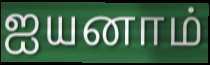
ஐயனாம்